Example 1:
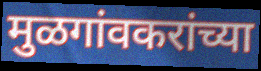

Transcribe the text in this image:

मुळगांवकरांच्या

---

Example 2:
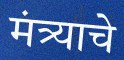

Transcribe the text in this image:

मंत्र्याचे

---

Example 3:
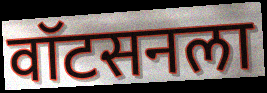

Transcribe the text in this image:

वॉटसनला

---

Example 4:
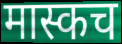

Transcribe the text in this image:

मास्कच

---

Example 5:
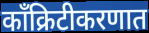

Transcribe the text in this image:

काँक्रिटीकरणात